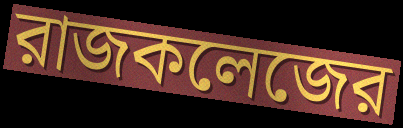
রাজকলেজের